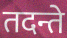
तदन्ते